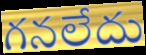
గనలేదు